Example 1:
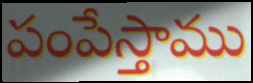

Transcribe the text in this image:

పంపేస్తాము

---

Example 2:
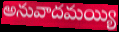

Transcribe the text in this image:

అనువాదమయ్యి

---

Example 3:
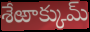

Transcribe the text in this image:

శేఱాక్కుమ్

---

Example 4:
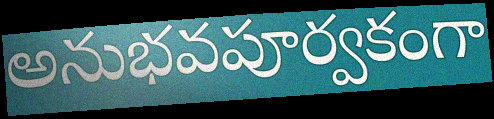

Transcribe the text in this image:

అనుభవపూర్వకంగా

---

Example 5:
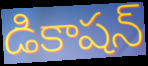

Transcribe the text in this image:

డికాషన్